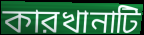
কারখানাটি